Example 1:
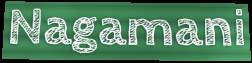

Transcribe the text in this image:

Nagamani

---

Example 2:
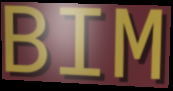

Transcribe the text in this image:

BIM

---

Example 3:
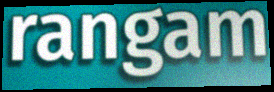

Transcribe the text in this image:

rangam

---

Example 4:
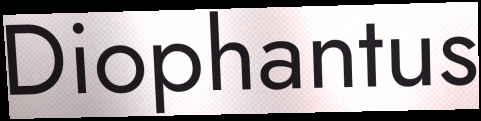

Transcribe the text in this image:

Diophantus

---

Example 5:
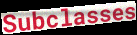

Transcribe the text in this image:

Subclasses